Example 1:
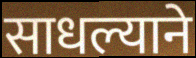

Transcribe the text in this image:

साधल्याने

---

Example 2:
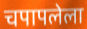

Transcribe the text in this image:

चपापलेला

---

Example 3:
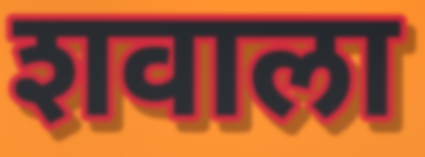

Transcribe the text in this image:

शवाला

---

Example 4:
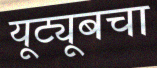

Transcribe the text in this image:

यूट्यूबचा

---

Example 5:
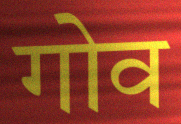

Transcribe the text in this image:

गोव